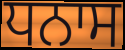
ਧਨਾਸ